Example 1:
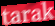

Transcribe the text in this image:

tarak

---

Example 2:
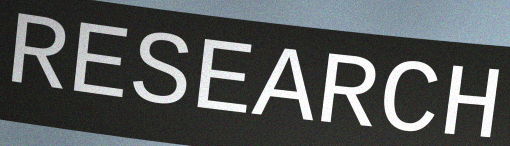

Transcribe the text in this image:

RESEARCH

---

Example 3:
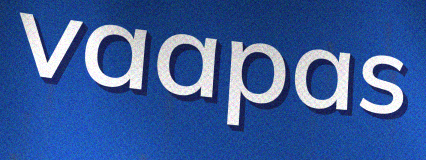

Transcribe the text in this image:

vaapas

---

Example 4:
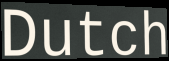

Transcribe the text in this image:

Dutch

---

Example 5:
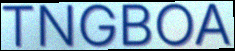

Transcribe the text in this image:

TNGBOA